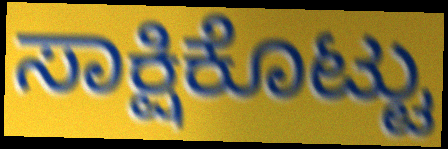
ಸಾಕ್ಷಿಕೊಟ್ಟು